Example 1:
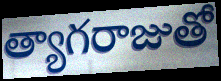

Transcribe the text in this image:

త్యాగరాజుతో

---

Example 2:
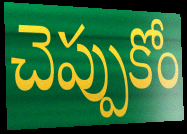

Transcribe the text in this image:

చెప్పుకోం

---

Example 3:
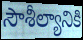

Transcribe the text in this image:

సౌశీల్యానికి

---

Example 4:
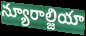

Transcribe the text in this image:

న్యూరాల్జియా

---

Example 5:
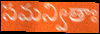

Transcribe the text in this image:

సమన్వితాః